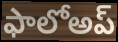
ఫాలోఅప్